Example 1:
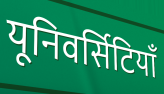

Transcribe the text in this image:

यूनिवर्सिटियाँ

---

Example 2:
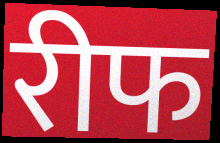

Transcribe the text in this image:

रीफ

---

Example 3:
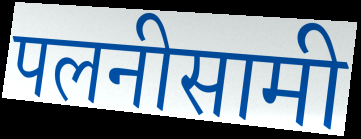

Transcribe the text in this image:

पलनीसामी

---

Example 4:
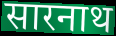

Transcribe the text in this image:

सारनाथ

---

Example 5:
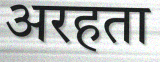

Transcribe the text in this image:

अरहता